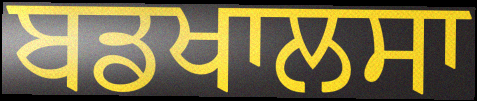
ਬਡਖਾਲਸਾ